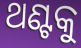
ଥଣ୍ଟକୁ